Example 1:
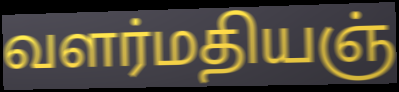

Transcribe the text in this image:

வளர்மதியஞ்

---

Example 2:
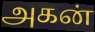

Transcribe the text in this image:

அகன்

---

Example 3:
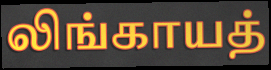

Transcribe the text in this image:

லிங்காயத்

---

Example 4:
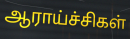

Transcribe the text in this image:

ஆராய்ச்சிகள்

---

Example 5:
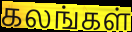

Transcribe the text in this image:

கலங்கள்